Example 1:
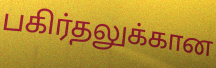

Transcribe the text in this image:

பகிர்தலுக்கான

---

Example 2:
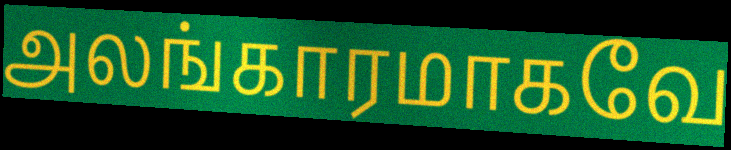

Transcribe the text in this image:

அலங்காரமாகவே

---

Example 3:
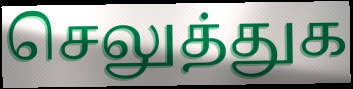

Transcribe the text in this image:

செலுத்துக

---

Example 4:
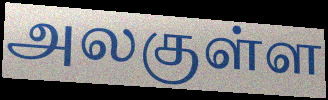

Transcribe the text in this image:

அலகுள்ள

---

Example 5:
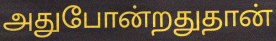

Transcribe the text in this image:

அதுபோன்றதுதான்